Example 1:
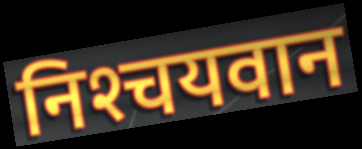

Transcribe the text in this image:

निश्चयवान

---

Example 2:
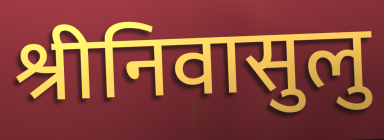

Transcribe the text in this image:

श्रीनिवासुलु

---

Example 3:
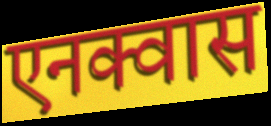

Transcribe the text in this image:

एनक्वास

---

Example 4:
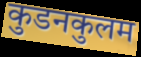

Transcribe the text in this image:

कुडनकुलम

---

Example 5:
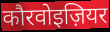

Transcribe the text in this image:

कौरवोइज़ियर